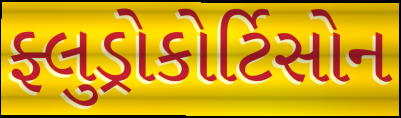
ફ્લુડ્રોકોર્ટિસોન